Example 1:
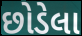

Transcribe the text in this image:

છોડેલા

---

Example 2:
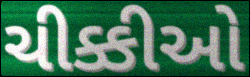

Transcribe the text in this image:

ચીક્કીઓ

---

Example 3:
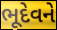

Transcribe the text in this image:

ભૂદેવને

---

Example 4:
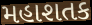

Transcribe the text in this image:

મહાશતક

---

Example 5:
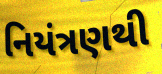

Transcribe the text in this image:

નિયંત્રણથી